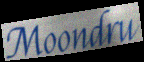
Moondru